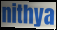
nithya